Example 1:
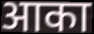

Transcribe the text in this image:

आका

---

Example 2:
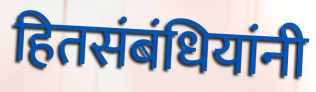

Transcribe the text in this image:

हितसंबंधियांनी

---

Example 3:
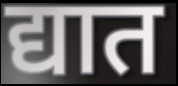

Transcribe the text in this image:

द्यात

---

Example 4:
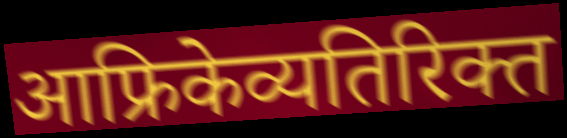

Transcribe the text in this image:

आफ्रिकेव्यतिरिक्त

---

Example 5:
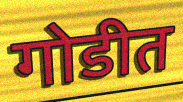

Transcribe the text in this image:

गोडीत